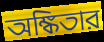
অঙ্কিতার